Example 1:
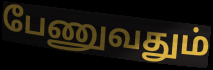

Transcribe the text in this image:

பேணுவதும்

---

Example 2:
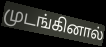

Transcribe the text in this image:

முடங்கினால்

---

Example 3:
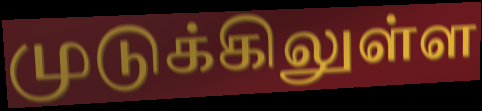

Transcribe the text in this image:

முடுக்கிலுள்ள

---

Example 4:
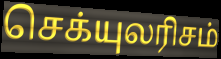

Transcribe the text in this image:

செக்யுலரிசம்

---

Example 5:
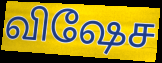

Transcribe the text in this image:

விஷேச